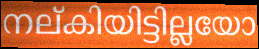
നല്കിയിട്ടില്ലയോ